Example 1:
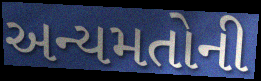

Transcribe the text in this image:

અન્યમતોની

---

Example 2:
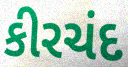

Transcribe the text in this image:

કીરચંદ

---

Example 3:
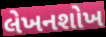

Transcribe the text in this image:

લેખનશોખ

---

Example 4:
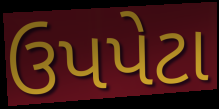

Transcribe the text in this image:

ઉપપેટા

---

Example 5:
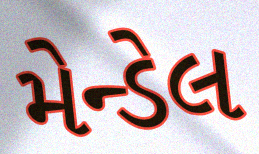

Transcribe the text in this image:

મેન્ડેલ